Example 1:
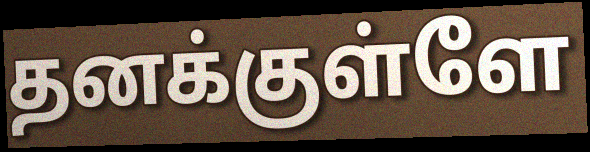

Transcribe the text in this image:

தனக்குள்ளே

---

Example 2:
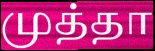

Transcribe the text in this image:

முத்தா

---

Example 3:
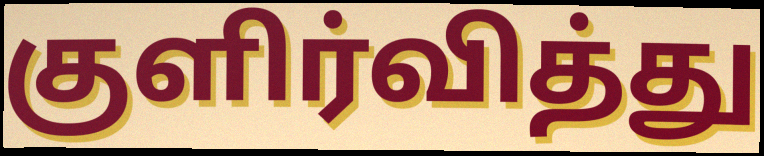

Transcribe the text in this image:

குளிர்வித்து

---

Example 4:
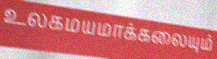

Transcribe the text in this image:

உலகமயமாக்கலையும்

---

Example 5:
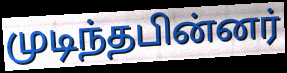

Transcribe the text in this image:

முடிந்தபின்னர்